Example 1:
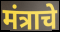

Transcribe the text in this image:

मंत्राचे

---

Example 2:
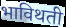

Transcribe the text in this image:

भाविथती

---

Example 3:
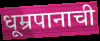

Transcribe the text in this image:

धूम्रपानाची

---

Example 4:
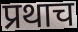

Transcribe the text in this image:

प्रथाच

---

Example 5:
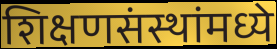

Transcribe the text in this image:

शिक्षणसंस्थांमध्ये